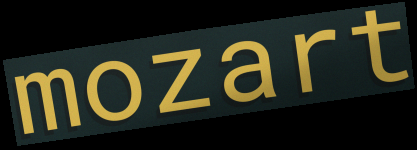
mozart